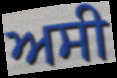
ਅਸੀ